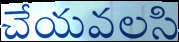
చేయవలసి